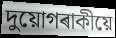
দুয়োগৰাকীয়ে